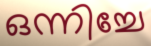
ഒന്നിച്ചേ